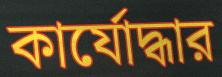
কার্যোদ্ধার